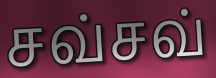
சவ்சவ்